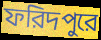
ফরিদপুরে